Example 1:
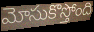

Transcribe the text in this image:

మోసుకొస్తోంది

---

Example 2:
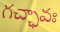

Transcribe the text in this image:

గచ్ఛావః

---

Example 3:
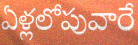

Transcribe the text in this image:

ఏళ్లలోపువారే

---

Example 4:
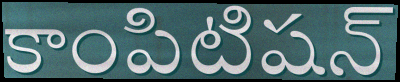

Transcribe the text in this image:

కాంపిటిషన్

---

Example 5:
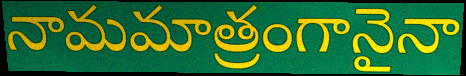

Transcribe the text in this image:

నామమాత్రంగానైనా